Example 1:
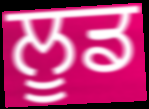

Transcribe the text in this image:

ਲੂਡ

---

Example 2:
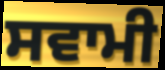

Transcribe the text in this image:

ਸਵਾਮੀ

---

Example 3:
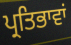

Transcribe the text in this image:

ਪ੍ਰਤਿਭਾਵਾਂ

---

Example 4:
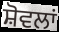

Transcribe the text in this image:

ਸ਼ੋਵਲਾਂ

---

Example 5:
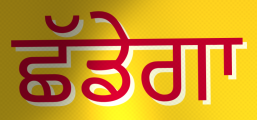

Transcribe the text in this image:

ਛੱਡੇਗਾ